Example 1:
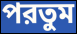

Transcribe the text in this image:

পরতুম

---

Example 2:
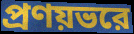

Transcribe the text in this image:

প্রণয়ভরে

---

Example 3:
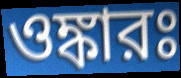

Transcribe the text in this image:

ওঙ্কারঃ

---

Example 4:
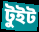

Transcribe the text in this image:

টুইট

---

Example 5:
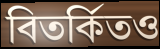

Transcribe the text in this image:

বিতর্কিতও